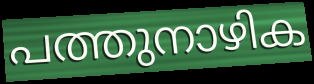
പത്തുനാഴിക